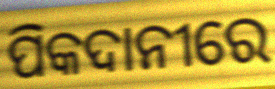
ପିକଦାନୀରେ